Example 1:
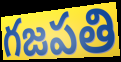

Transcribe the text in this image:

గజపతి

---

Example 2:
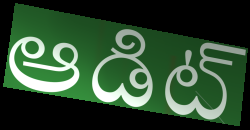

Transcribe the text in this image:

ఆడిట్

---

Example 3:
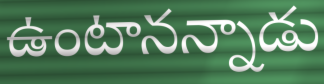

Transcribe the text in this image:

ఉంటానన్నాడు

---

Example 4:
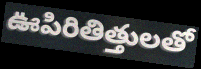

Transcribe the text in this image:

ఊపిరితిత్తులతో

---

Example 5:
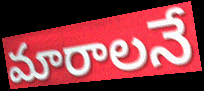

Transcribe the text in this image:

మారాలనే